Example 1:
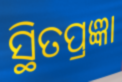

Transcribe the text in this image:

ସ୍ଥିତପ୍ରଜ୍ଞା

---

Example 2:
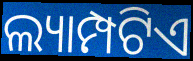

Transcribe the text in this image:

ଲ୍ୟାମ୍ପଟିଏ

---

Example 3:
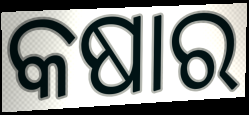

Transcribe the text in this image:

କଷାର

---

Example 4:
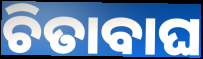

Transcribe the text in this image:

ଚିତାବାଘ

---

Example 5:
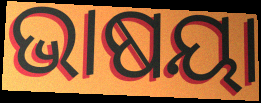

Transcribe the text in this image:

ଭାଷୟା